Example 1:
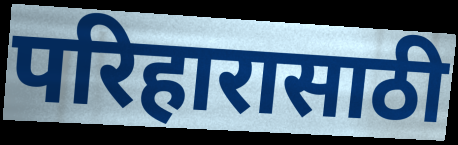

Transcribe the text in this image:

परिहारासाठी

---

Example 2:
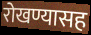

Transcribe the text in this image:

रोखण्यासह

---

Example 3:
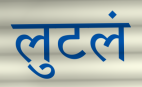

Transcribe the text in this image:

लुटलं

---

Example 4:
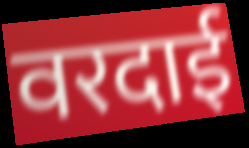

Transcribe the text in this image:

वरदाई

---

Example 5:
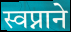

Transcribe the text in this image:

स्वप्नाने